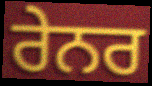
ਰੇਨਰ